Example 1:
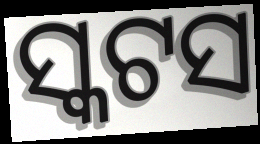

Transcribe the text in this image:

ସ୍କଟସ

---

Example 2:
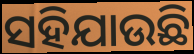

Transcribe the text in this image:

ସହିଯାଉଛି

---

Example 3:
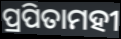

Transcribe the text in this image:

ପ୍ରପିତାମହୀ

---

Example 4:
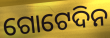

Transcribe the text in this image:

ଗୋଟେଦିନ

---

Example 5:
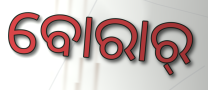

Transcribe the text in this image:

ବୋରାର୍